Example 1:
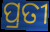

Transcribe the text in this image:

ପ୍ରତୀ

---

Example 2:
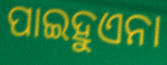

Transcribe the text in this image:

ପାଇହୁଏନା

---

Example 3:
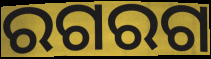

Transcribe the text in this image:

ରଗରଗ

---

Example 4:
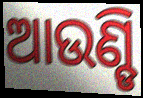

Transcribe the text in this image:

ଆଉଣ୍ଡି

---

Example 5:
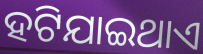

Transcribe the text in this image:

ହଟିଯାଇଥାଏ